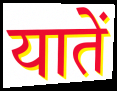
यातें